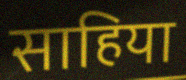
साहिया